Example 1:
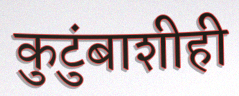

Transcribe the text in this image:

कुटुंबाशीही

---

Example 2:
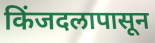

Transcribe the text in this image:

किंजदलापासून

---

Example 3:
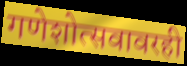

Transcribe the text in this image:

गणेशोत्सवावरही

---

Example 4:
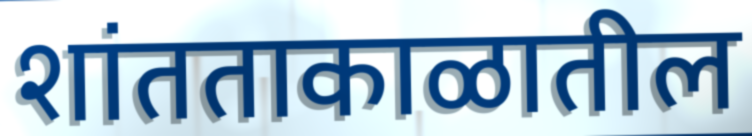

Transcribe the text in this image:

शांतताकाळातील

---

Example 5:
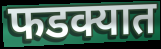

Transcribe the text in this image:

फडक्यात